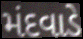
મંદવાડે